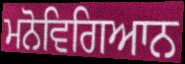
ਮਨੋਵਿਗਿਆਨ